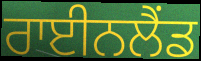
ਰਾਈਨਲੈਂਡ